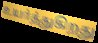
உயர்த்துகிறது